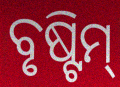
ବୃଷ୍ଟିମ୍